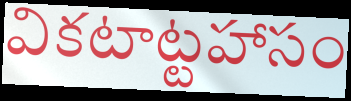
వికటాట్టహాసం